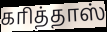
கரித்தாஸ்